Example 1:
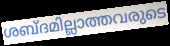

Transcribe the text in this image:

ശബ്ദമില്ലാത്തവരുടെ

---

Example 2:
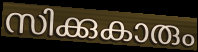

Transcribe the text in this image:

സിക്കുകാരും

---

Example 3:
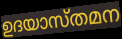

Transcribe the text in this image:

ഉദയാസ്തമന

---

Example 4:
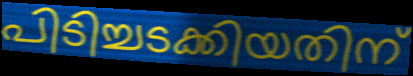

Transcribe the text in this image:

പിടിച്ചടക്കിയതിന്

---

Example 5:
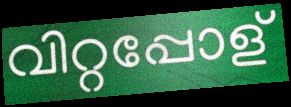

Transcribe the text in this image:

വിറ്റപ്പോള്